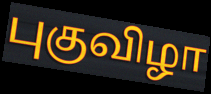
புகுவிழா